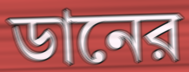
ডানের